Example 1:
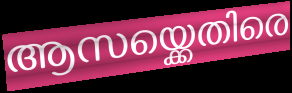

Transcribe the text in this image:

ആസയ്ക്കെതിരെ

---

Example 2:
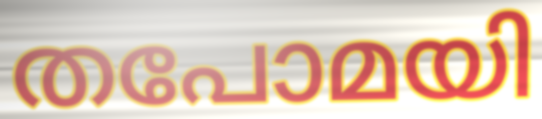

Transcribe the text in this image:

തപോമയി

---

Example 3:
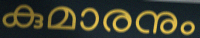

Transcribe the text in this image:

കുമാരനും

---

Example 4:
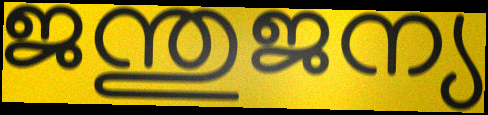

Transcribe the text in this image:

ജന്തുജന്യ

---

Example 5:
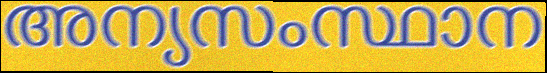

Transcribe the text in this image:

അന്യസംസ്ഥാന